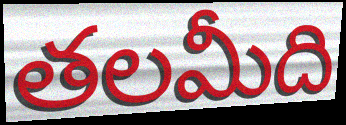
తలమీది